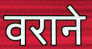
वराने